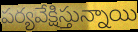
పర్యవేక్షిస్తున్నాయి